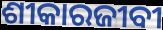
ଶୀକାରଜୀବୀ